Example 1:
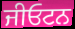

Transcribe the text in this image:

ਜੀਓਟਨ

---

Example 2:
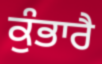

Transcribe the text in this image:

ਕੁੰਭਾਰੈ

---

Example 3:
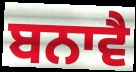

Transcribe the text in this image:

ਬਨਾਵੈ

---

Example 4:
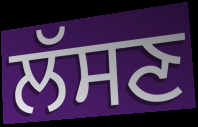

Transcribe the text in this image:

ਲੱਸਣ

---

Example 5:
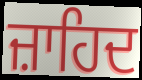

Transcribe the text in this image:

ਜ਼ਾਹਿਦ